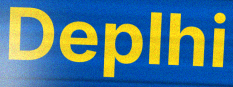
Deplhi